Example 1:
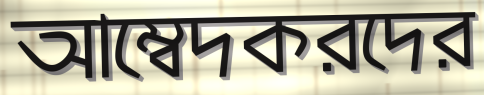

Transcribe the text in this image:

আম্বেদকরদের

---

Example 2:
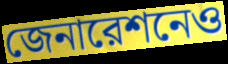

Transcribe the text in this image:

জেনারেশনেও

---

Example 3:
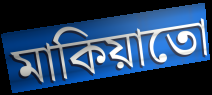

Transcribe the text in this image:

মাকিয়াতো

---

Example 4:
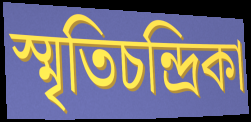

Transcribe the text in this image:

স্মৃতিচন্দ্রিকা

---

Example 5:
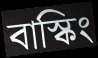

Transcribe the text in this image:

বাস্কিং